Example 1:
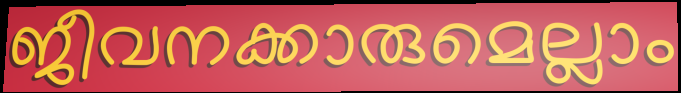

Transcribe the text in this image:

ജീവനക്കാരുമെല്ലാം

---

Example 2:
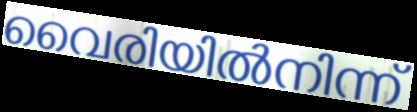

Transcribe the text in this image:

വൈരിയിൽനിന്ന്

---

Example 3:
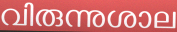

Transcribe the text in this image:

വിരുന്നുശാല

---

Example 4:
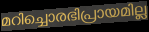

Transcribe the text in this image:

മറിച്ചൊരഭിപ്രായമില്ല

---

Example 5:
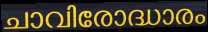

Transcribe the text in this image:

ചാവിരോദ്ധാരം